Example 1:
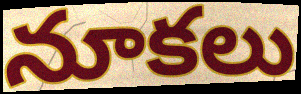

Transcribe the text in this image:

నూకలు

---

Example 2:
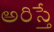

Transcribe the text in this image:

అరిస్తే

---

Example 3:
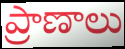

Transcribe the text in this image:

ప్రాణాలు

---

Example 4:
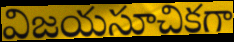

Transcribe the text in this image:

విజయసూచికగా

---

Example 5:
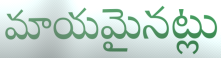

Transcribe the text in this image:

మాయమైనట్లు